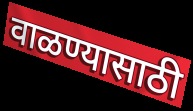
वाळण्यासाठी